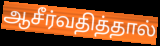
ஆசீர்வதித்தால்